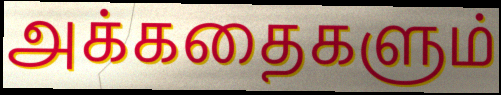
அக்கதைகளும்